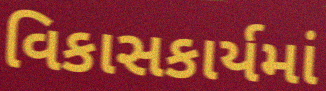
વિકાસકાર્યમાં